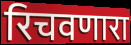
रिचवणारा